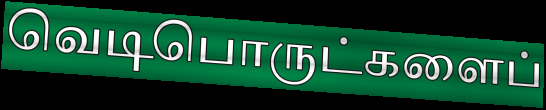
வெடிபொருட்களைப்